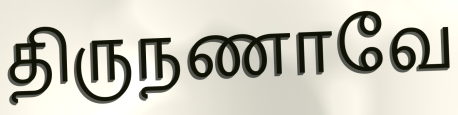
திருநணாவே